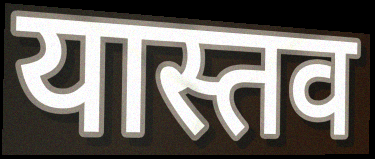
यास्तव